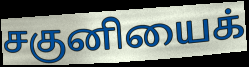
சகுனியைக்